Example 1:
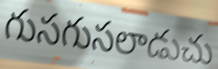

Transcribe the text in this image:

గుసగుసలాడుచు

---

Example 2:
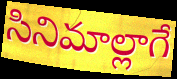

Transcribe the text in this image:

సినిమాల్లాగే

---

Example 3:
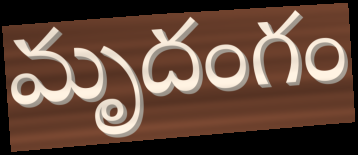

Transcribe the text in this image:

మృదంగం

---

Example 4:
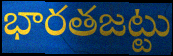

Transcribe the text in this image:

భారతజట్టు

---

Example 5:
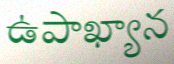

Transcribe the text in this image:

ఉపాఖ్యాన